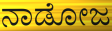
ನಾಡೋಜ